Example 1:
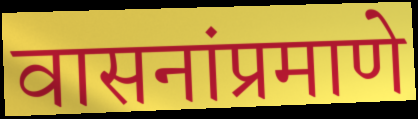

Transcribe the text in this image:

वासनांप्रमाणे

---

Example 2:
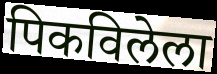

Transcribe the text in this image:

पिकविलेला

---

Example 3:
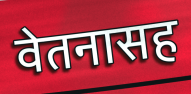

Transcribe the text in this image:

वेतनासह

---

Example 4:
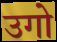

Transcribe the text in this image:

उगो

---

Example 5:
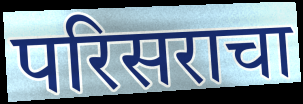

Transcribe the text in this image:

परिसराचा